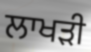
ਲਾਖੜੀ